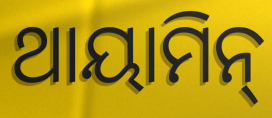
ଥାୟାମିନ୍